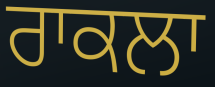
ਰਾਕਲਾ